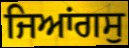
ਜਿਆਂਗਸੁ